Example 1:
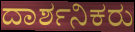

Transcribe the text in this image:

ದಾರ್ಶನಿಕರು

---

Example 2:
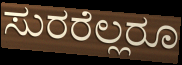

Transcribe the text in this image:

ಸುರರೆಲ್ಲರೂ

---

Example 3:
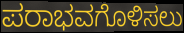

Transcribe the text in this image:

ಪರಾಭವಗೊಳಿಸಲು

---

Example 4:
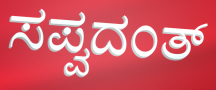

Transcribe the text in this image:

ಸಪ್ವದಂತ್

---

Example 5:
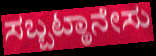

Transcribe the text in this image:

ಸಬ್ಬಟ್ಠಾನೇಸು